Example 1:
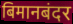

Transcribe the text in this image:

बिमानबंदर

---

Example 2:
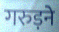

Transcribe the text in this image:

गरुड़ने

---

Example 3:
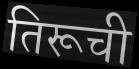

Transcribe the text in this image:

तिरूची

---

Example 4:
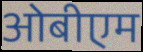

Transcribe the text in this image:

ओबीएम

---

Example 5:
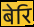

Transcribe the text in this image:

बेरि